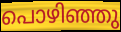
പൊഴിഞ്ഞു